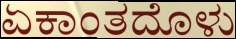
ಏಕಾಂತದೊಳು